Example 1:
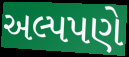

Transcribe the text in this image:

અલ્પપણે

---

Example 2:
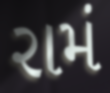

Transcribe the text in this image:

રામં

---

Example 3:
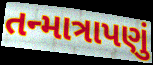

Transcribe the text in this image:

તન્માત્રાપણું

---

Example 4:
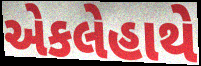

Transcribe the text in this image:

એકલેહાથે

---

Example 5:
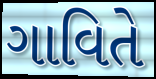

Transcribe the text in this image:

ગાવિતે